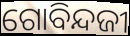
ଗୋବିନ୍ଦଜୀ